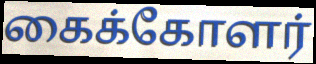
கைக்கோளர்